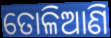
ତୋଳିଆଣି